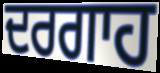
ਦਰਗਾਹ